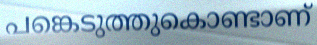
പങ്കെടുത്തുകൊണ്ടാണ്